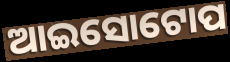
ଆଇସୋଟୋପ